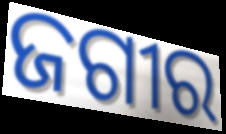
ଜଗୀର